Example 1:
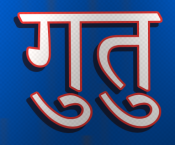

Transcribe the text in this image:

गुतु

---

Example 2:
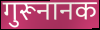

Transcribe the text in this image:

गुरूनानक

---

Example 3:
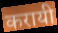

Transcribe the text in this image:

करायी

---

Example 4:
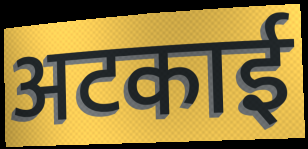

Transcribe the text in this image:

अटकाई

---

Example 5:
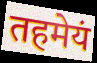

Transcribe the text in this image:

तहमेयं